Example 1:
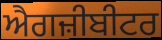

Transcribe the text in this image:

ਐਗਜ਼ੀਬੀਟਰ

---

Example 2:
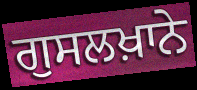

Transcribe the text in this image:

ਗੁਸਲਖ਼ਾਨੇ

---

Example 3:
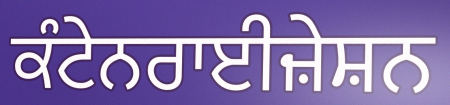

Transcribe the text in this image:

ਕੰਟੇਨਰਾਈਜ਼ੇਸ਼ਨ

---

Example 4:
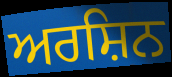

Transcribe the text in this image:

ਅਰਸ਼ਿਨ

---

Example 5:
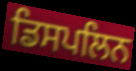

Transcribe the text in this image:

ਡਿਸਪਲਿਨ